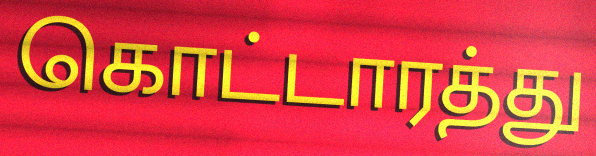
கொட்டாரத்து